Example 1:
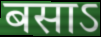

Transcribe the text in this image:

बसाऽ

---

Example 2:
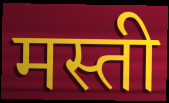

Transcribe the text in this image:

मस्ती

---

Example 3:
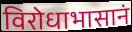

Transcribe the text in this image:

विरोधाभासानं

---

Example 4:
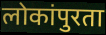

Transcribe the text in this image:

लोकांपुरता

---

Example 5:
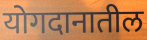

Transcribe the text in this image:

योगदानातील